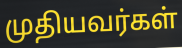
முதியவர்கள்